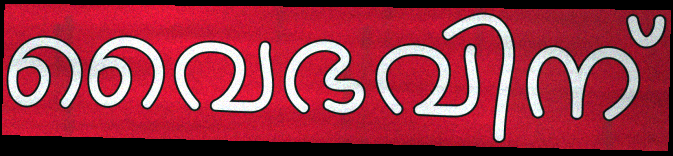
വൈഭവിന്